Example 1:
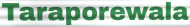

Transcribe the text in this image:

Taraporewala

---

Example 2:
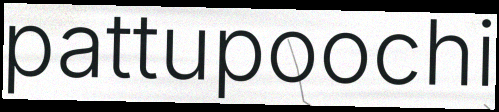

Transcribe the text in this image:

pattupoochi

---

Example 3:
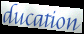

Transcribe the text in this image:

ducation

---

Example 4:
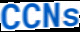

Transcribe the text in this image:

CCNs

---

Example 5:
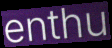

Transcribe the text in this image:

enthu